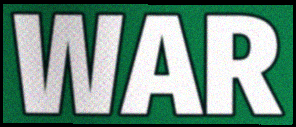
WAR